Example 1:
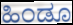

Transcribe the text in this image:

ಹಿಂಡೂ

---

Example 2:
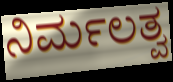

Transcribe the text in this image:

ನಿರ್ಮಲತ್ವ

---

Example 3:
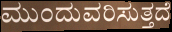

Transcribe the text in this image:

ಮುಂದುವರಿಸುತ್ತದೆ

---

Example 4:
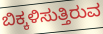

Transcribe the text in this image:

ಬಿಕ್ಕಳಿಸುತ್ತಿರುವ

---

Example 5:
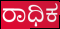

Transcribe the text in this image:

ರಾಧಿಕ